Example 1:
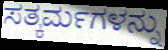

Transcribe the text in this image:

ಸತ್ಕರ್ಮಗಳನ್ನು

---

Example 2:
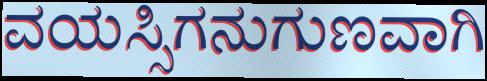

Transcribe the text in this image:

ವಯಸ್ಸಿಗನುಗುಣವಾಗಿ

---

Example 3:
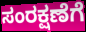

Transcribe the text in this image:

ಸಂರಕ್ಷಣೆಗೆ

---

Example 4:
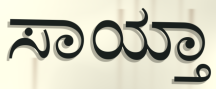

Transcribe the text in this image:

ಸಾಯ್ತಾ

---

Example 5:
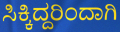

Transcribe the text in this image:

ಸಿಕ್ಕಿದ್ದರಿಂದಾಗಿ